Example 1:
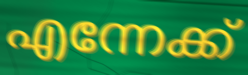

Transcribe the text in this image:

എന്നേക്ക്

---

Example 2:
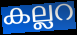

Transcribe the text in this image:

കല്ലറ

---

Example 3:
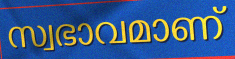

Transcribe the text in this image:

സ്വഭാവമാണ്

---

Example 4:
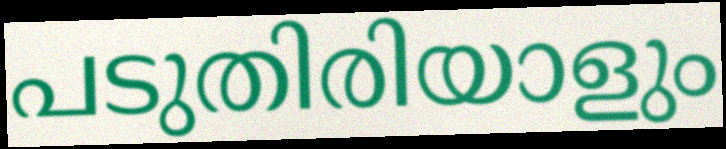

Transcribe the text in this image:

പടുതിരിയാളും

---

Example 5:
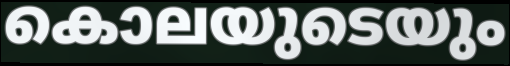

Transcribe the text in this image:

കൊലയുടെയും